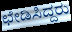
ಛೇಡಿಸಿದ್ದರು